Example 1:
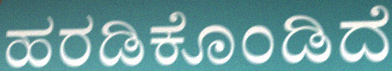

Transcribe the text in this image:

ಹರಡಿಕೊಂಡಿದೆ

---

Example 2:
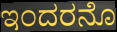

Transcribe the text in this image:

ಇಂದರನೊ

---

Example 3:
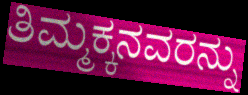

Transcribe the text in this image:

ತಿಮ್ಮಕ್ಕನವರನ್ನು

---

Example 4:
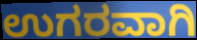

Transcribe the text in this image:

ಉಗರವಾಗಿ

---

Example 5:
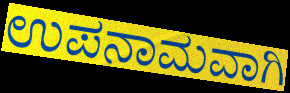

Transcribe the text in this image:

ಉಪನಾಮವಾಗಿ